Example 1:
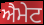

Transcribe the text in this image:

ਐਮੇਟ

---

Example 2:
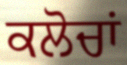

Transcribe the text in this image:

ਕਲੋਚਾਂ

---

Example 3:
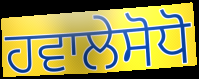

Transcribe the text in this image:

ਹਵਾਲੇਸੋਧੋ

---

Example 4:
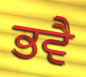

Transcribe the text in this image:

ਭਵੈ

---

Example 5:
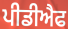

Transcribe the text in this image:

ਪੀਡੀਐਫ